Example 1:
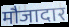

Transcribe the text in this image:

मौजादार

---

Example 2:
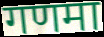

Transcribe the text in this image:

गणमा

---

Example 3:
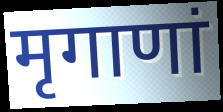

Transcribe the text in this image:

मृगाणां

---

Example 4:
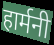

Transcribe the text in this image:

हार्मनी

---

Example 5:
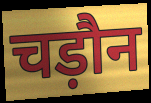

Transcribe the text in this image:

चड़ौन